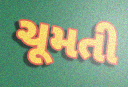
ચૂમતી